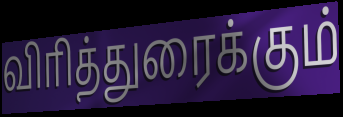
விரித்துரைக்கும்